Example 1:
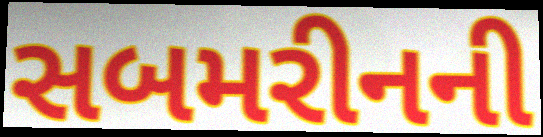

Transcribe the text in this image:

સબમરીનની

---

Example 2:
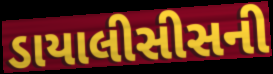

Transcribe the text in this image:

ડાયાલીસીસની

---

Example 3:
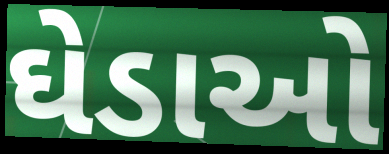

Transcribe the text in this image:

ઘેડાઓ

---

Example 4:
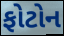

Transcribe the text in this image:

ફોટોન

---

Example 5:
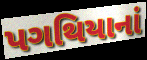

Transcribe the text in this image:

પગથિયાનાં